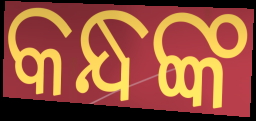
କନ୍ଧଙ୍କ